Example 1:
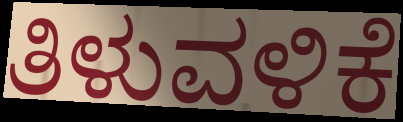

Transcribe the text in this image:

ತಿಳುವಳಿಕೆ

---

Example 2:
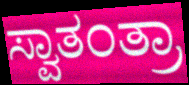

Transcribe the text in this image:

ಸ್ವಾತಂತ್ರಾ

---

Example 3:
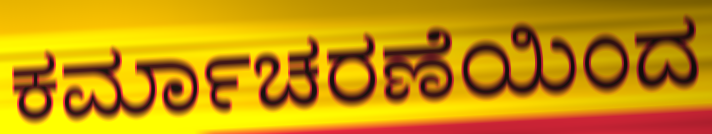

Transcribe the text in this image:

ಕರ್ಮಾಚರಣೆಯಿಂದ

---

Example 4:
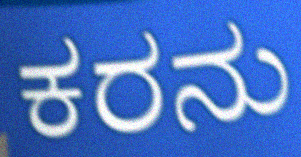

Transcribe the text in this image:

ಕರನು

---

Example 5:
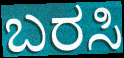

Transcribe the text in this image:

ಬರಸಿ